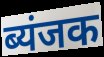
ब्यंजक